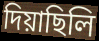
দিয়াছিলি